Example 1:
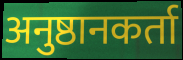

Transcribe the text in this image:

अनुष्ठानकर्ता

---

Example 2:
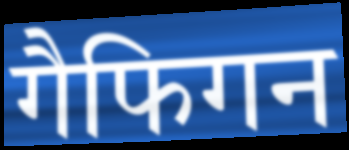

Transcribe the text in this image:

गैफिगन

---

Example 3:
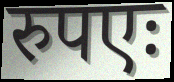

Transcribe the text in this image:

रुपएः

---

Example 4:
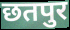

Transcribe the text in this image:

छतपुर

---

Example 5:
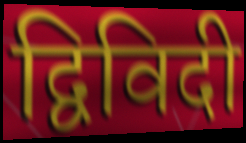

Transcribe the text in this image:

द्विविदी